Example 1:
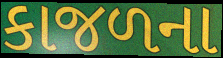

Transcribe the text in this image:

કાજળના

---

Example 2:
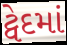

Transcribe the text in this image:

ટ્વેદમાં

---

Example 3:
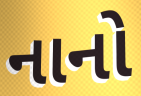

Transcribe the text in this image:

નાનો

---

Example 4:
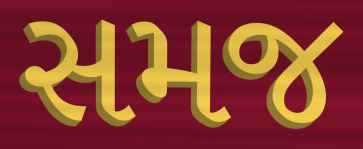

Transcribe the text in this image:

સમજ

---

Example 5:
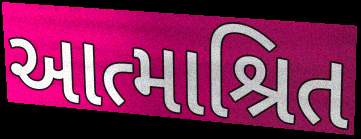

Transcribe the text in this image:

આત્માશ્રિત